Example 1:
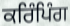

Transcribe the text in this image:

ਕਰਿੰਪਿੰਗ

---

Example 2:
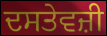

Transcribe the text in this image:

ਦਸਤੇਵਜ਼ੀ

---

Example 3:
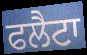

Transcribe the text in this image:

ਫਲੈਟਾ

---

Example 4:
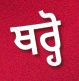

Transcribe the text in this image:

ਥਰ੍ਹੋ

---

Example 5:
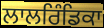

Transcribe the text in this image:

ਲਾਲਰਿੰਡਿਕਾ